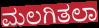
ಮಲಗಿತಲಾ